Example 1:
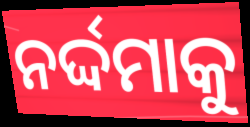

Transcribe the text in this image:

ନର୍ଦ୍ଦମାକୁ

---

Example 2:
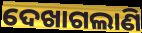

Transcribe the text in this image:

ଦେଖାଗଲାଣି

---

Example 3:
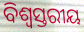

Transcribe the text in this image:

ବିଶ୍ବସ୍ତରୀୟ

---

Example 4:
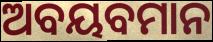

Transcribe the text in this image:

ଅବୟବମାନ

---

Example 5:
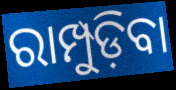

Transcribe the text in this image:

ରାମ୍ପୁଡ଼ିବା